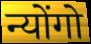
न्योंगो